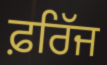
ਫ਼ਰਿੱਜ